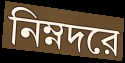
নিম্নদরে